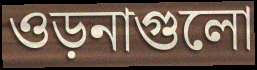
ওড়নাগুলো